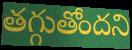
తగ్గుతోందని